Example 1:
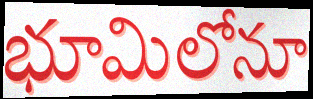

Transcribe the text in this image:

భూమిలోనూ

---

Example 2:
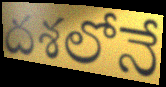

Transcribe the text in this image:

దశలోనే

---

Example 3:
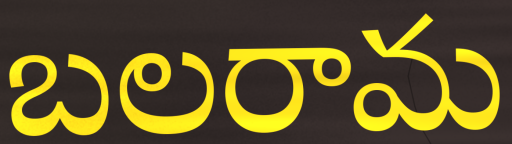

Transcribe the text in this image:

బలరామ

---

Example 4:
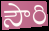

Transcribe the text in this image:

సౌరి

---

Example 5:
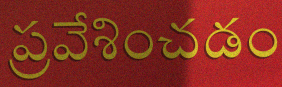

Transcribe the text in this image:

ప్రవేశించడం